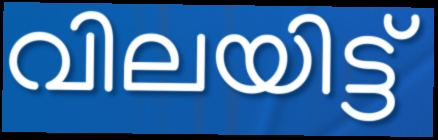
വിലയിട്ട്